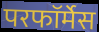
परफॉर्मेस